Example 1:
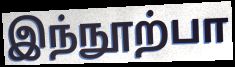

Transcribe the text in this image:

இந்நூற்பா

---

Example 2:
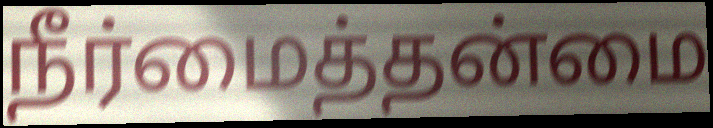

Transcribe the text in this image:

நீர்மைத்தன்மை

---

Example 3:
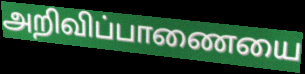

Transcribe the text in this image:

அறிவிப்பாணையை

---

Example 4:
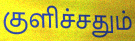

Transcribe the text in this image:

குளிச்சதும்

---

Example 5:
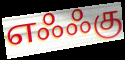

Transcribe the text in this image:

எஃஃகு